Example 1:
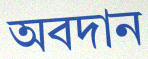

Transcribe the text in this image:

অবদান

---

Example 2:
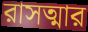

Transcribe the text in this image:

রাসত্মার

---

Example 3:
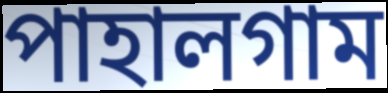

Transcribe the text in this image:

পাহালগাম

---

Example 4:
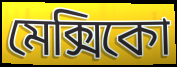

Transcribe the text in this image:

মেক্সিকো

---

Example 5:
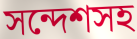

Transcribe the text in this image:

সন্দেশসহ